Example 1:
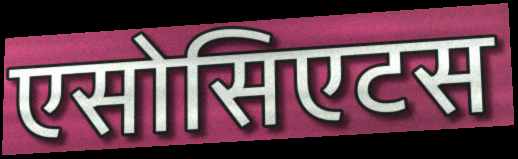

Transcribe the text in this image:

एसोसिएटस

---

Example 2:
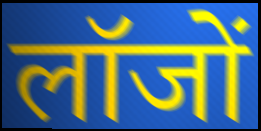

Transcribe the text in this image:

लॉजों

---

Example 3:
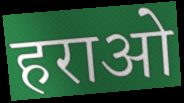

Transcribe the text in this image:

हराओ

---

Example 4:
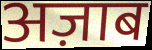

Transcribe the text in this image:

अज़ाब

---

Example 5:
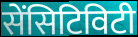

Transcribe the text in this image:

सेंसिटिविटी